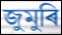
জুমুৰি